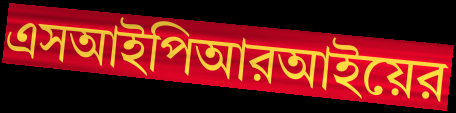
এসআইপিআরআইয়ের